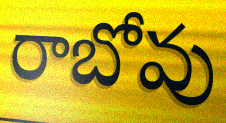
రాబోవు